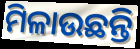
ମିଳାଉଛନ୍ତି